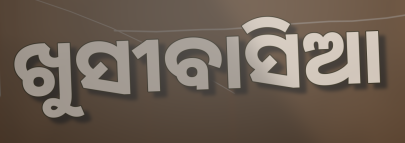
ଖୁସୀବାସିଆ